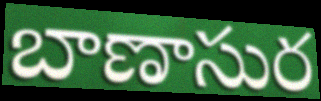
బాణాసుర